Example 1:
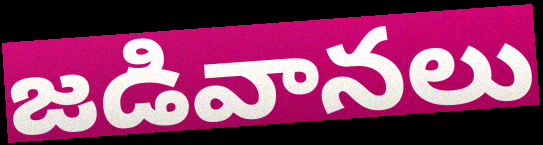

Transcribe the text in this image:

జడివానలు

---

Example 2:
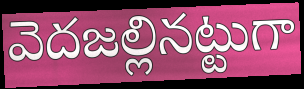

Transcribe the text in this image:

వెదజల్లినట్టుగా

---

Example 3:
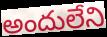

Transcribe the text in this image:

అందులేని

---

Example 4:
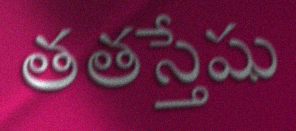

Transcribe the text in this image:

తతస్తేషు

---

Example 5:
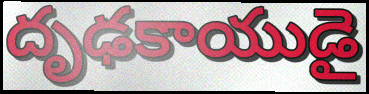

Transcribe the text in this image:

దృఢకాయుడై